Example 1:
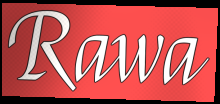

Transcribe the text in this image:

Rawa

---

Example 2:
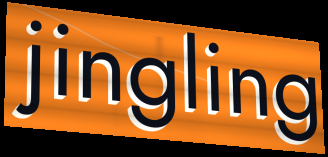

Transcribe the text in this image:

jingling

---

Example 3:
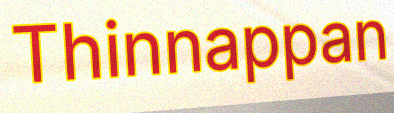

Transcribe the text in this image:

Thinnappan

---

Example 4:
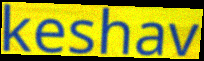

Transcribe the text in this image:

keshav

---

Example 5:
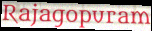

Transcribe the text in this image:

Rajagopuram